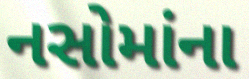
નસોમાંના